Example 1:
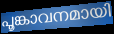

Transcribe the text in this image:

പൂങ്കാവനമായി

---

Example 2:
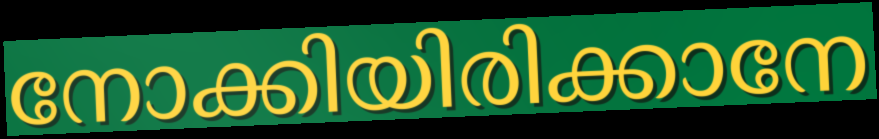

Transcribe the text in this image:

നോക്കിയിരിക്കാനേ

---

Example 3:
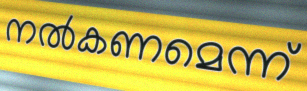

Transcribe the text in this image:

നൽകണമെന്ന്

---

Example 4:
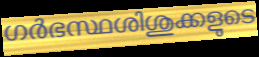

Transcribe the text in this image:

ഗർഭസ്ഥശിശുക്കളുടെ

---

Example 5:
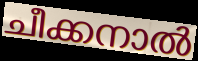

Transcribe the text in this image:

ചീക്കനാൽ